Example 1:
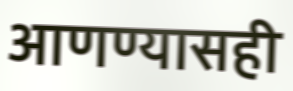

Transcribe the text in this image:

आणण्यासही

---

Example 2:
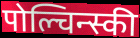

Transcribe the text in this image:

पोल्चिन्स्की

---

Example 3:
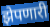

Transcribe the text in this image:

झेपणारी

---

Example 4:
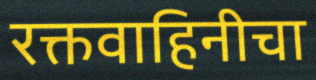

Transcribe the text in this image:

रक्तवाहिनीचा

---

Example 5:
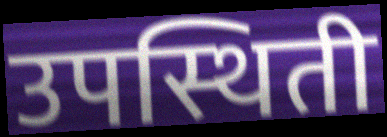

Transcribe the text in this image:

उपस्थिती